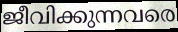
ജീവിക്കുന്നവരെ